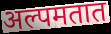
अल्पमतात